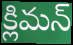
క్లిమన్